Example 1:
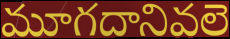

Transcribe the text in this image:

మూగదానివలె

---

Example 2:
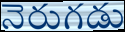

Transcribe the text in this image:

నెరుగడు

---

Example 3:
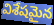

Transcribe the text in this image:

విశేషమైన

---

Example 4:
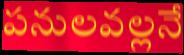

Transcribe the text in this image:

పనులవల్లనే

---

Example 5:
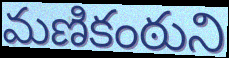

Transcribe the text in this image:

మణికంఠుని